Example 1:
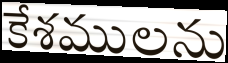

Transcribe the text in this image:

కేశములను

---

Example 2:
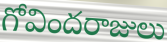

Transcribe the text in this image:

గోవిందరాజులు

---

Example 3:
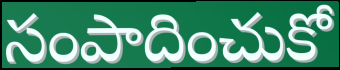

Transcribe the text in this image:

సంపాదించుకో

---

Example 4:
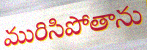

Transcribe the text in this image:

మురిసిపోతాను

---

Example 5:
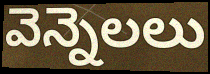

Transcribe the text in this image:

వెన్నెలలు